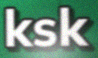
ksk